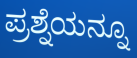
ಪ್ರಶ್ನೆಯನ್ನೂ